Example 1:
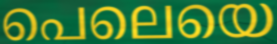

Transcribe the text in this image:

പെലെയെ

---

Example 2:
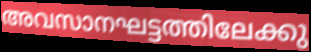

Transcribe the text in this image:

അവസാനഘട്ടത്തിലേക്കു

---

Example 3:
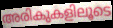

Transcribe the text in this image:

അരികുകളിലൂടെ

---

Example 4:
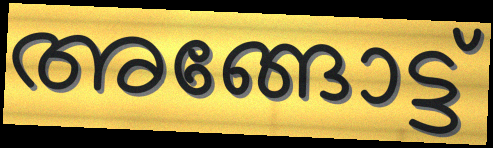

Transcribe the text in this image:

അങ്ങോട്ട്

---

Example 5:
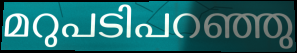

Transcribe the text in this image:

മറുപടിപറഞ്ഞു